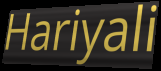
Hariyali